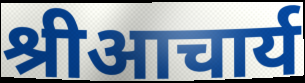
श्रीआचार्य